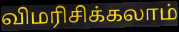
விமரிசிக்கலாம்